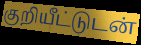
குறியீட்டுடன்